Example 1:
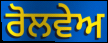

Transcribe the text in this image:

ਰੋਲਵੇਅ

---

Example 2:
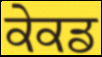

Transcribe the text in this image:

ਕੇਕਡ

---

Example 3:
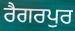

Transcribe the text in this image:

ਰੈਗਰਪੁਰ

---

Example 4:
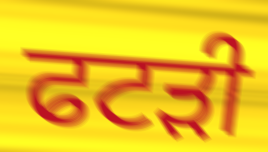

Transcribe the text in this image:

ਫਟੜੀ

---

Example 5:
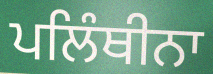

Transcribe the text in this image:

ਪਲਿੰਥੀਨਾ